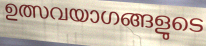
ഉത്സവയാഗങ്ങളുടെ